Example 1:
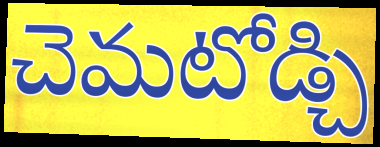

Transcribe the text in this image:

చెమటోడ్చి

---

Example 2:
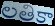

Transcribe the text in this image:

లతికా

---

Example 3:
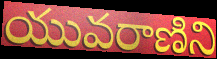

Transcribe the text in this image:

యువరాణిని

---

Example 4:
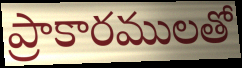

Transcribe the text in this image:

ప్రాకారములతో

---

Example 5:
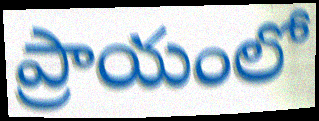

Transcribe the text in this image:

ప్రాయంలో